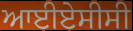
ਆਈਏਸੀਸੀ